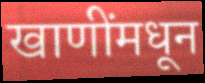
खाणींमधून